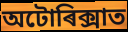
অটোৰিক্সাত